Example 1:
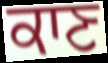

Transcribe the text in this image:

ਕਾਣ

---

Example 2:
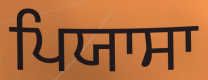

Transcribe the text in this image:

ਪਿਯਾਸਾ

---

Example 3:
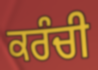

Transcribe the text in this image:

ਕਰੰਚੀ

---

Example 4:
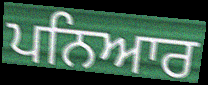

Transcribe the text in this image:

ਪਨਿਆਰ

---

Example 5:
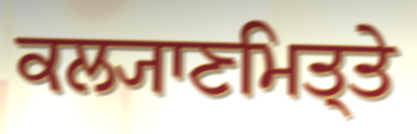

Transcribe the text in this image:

ਕਲ੍ਯਾਣਮਿਤ੍ਤੇ